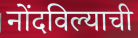
नोंदविल्याची